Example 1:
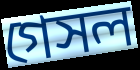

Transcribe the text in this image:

গেসল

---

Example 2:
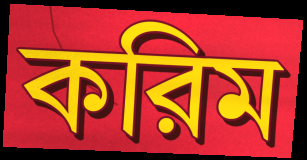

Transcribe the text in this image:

করিম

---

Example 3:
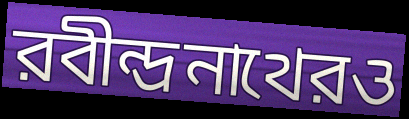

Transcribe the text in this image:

রবীন্দ্রনাথেরও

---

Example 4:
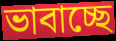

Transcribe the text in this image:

ভাবাচ্ছে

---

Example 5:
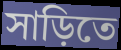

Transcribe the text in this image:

সাড়িতে